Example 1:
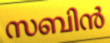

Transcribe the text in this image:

സബിൻ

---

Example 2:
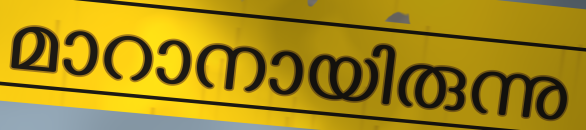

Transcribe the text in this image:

മാറാനായിരുന്നു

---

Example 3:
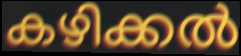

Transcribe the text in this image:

കഴിക്കൽ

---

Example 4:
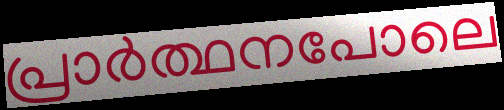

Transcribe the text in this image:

പ്രാർത്ഥനപോലെ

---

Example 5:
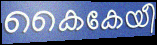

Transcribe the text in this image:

കൈകേയീ